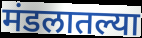
मंडलातल्या